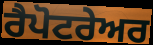
ਰੈਪੋਟਰੇਅਰ